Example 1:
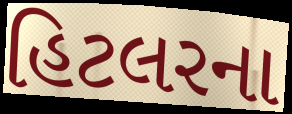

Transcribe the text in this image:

હિટલરના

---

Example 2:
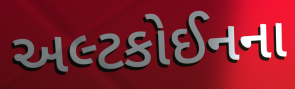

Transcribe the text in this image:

અલ્ટકોઈનના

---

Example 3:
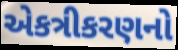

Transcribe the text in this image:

એકત્રીકરણનો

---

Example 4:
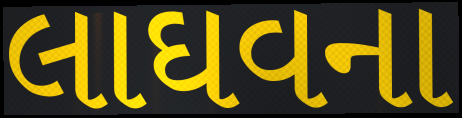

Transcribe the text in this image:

લાઘવના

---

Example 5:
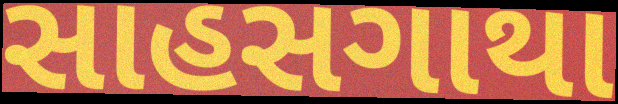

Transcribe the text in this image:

સાહસગાથા